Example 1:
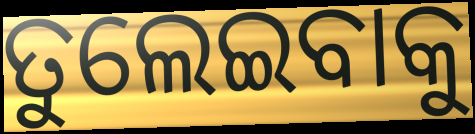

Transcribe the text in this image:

ତୁଲେଇବାକୁ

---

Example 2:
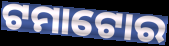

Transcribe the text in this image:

ଟମାଟୋର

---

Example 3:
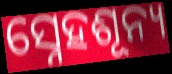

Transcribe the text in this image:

ସ୍ନେହଶୂନ୍ୟ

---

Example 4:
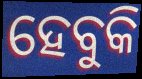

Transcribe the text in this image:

ହେବୁକି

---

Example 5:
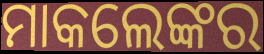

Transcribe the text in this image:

ମାକଲେଙ୍କର